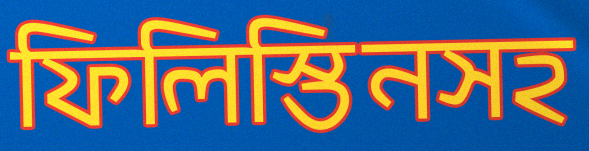
ফিলিস্তিনসহ